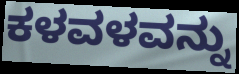
ಕಳವಳವನ್ನು